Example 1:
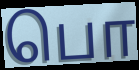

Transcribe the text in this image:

பொ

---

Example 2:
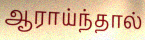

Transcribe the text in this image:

ஆராய்ந்தால்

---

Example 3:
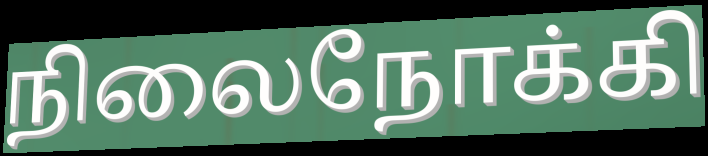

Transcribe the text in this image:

நிலைநோக்கி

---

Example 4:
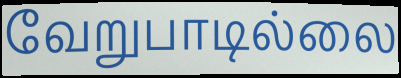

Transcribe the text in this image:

வேறுபாடில்லை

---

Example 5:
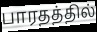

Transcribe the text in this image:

பாரதத்தில்